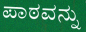
ಪಾಠವನ್ನು